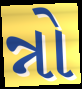
ન્નો